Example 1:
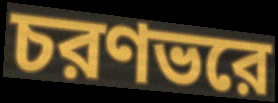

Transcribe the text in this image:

চরণভরে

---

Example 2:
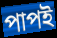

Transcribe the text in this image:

পাপই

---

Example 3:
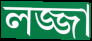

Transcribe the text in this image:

লজ্জা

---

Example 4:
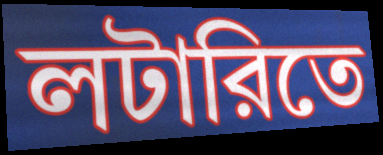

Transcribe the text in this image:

লটারিতে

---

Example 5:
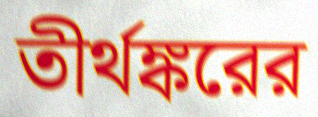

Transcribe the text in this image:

তীর্থঙ্করের